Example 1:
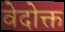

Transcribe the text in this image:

वेदोक्त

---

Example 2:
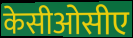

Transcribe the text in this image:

केसीओसीए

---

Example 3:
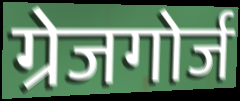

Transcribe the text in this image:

ग्रेजगोर्ज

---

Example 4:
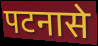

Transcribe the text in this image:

पटनासे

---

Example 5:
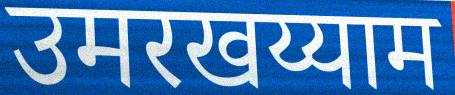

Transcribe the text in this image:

उमरखय्याम